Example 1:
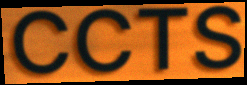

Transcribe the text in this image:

CCTS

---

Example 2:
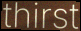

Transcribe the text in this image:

thirst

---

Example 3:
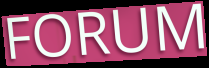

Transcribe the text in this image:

FORUM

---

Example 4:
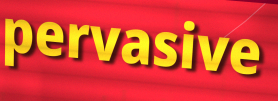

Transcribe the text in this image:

pervasive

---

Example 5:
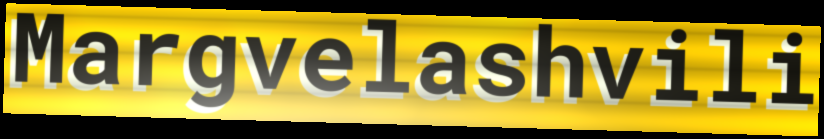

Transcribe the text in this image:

Margvelashvili